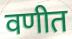
वणीत